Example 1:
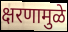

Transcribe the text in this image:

क्षरणामुळे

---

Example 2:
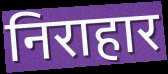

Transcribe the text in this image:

निराहार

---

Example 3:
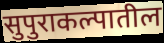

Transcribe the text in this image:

सुपुराकल्पातील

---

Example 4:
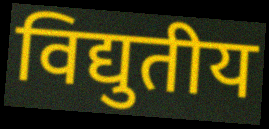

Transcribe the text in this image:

विद्युतीय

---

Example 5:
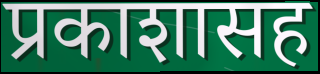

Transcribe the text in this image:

प्रकाशासह